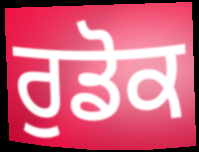
ਰੁਡੋਕ